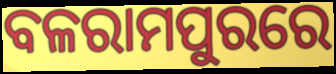
ବଳରାମପୁରରେ